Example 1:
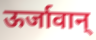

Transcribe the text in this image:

ऊर्जावान्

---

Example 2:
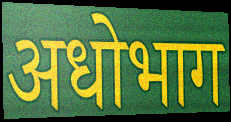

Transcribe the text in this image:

अधोभाग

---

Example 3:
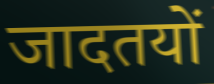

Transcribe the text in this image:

जादतयों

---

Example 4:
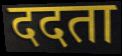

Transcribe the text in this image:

ददता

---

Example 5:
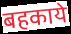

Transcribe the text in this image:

बहकाये